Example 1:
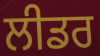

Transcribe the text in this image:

ਲੀਡਰ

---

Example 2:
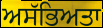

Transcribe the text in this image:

ਅਸੱਭਿਅਤਾ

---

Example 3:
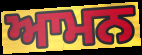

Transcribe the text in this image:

ਆਮਨ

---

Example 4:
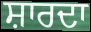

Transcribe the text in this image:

ਸ਼ਾਰਦਾ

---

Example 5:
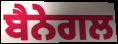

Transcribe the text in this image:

ਬੈਨੇਗਲ